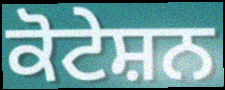
ਕੋਟੇਸ਼ਨ